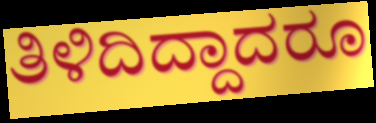
ತಿಳಿದಿದ್ದಾದರೂ